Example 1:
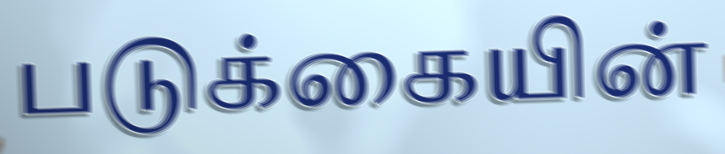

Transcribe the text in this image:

படுக்கையின்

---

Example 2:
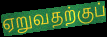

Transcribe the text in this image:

ஏறுவதற்குப்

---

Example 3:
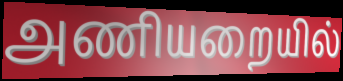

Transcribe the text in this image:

அணியறையில்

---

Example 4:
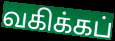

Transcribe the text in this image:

வகிக்கப்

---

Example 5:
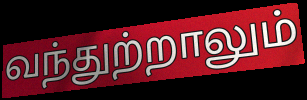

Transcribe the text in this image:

வந்துற்றாலும்